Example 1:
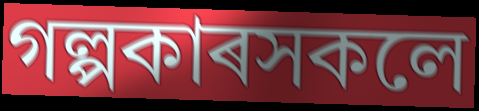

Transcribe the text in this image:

গল্পকাৰসকলে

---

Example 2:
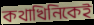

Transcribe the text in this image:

কথাখিনিকেই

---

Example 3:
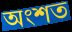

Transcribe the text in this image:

অংশত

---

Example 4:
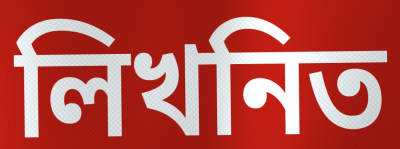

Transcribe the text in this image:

লিখনিত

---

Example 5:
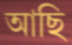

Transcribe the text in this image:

আছি